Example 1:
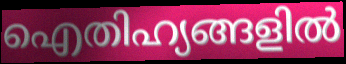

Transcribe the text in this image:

ഐതിഹ്യങ്ങളിൽ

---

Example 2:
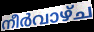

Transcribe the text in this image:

നീർവാഴ്ച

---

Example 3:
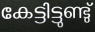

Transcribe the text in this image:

കേട്ടിട്ടുണ്ടു്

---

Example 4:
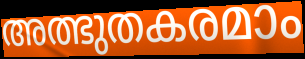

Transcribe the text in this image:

അത്ഭുതകരമാം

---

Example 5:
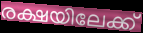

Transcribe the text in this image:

രക്ഷയിലേക്ക്